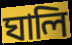
ঘালি